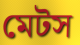
মেটস